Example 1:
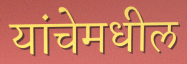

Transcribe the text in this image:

यांचेमधील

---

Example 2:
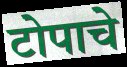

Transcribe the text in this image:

टोपाचे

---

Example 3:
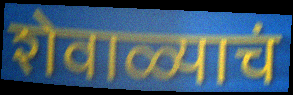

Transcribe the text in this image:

शेवाळ्याचं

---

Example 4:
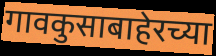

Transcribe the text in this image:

गावकुसाबाहेरच्या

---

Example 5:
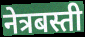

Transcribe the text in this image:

नेत्रबस्ती